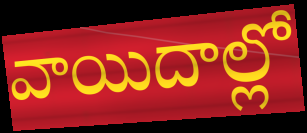
వాయిదాల్లో